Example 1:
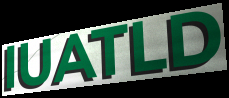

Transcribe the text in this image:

IUATLD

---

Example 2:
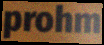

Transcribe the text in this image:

prohm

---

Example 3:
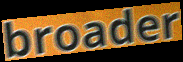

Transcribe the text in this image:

broader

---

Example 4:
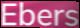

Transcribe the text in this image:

Ebers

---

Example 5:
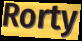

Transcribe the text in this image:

Rorty